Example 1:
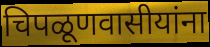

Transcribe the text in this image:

चिपळूणवासीयांना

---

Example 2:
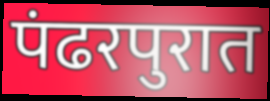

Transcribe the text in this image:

पंढरपुरात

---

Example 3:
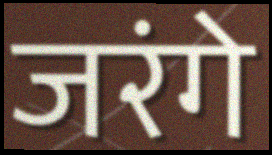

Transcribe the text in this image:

जरंगे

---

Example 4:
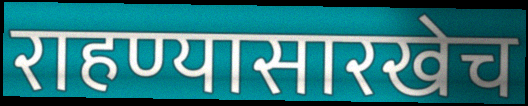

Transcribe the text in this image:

राहण्यासारखेच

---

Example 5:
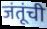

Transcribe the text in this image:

जंतूंची